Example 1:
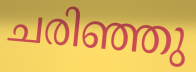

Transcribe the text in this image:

ചരിഞ്ഞു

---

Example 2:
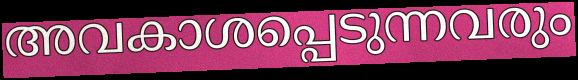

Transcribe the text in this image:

അവകാശപ്പെടുന്നവരും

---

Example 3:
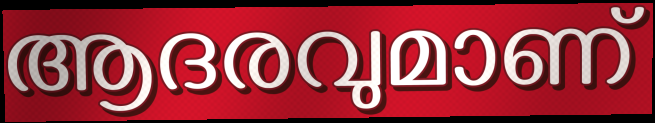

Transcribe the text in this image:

ആദരവുമാണ്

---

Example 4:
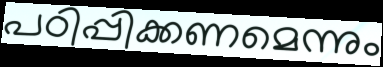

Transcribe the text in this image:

പഠിപ്പിക്കണമെന്നും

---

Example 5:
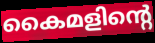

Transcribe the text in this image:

കൈമളിന്റെ